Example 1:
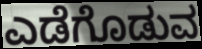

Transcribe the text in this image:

ಎಡೆಗೊಡುವ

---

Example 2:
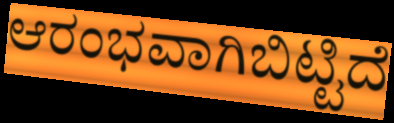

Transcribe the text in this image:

ಆರಂಭವಾಗಿಬಿಟ್ಟಿದೆ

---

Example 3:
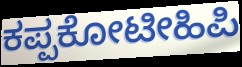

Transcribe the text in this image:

ಕಪ್ಪಕೋಟೀಹಿಪಿ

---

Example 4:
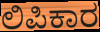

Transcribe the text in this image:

ಲಿಪಿಕಾರ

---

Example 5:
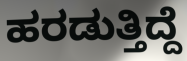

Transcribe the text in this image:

ಹರಡುತ್ತಿದ್ದೆ